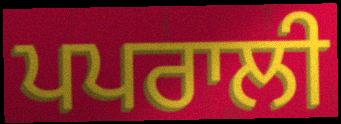
ਪਪਰਾਲੀ